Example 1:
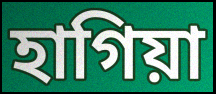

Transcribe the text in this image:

হাগিয়া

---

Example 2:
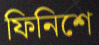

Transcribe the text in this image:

ফিনিশে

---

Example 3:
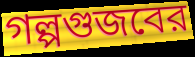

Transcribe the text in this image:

গল্পগুজবের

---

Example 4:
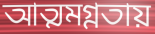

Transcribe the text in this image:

আত্মমগ্নতায়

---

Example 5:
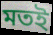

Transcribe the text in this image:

মতই